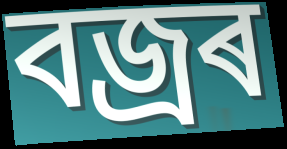
বজ্ৰৰ